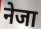
नेजा